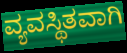
ವ್ಯವಸ್ಥಿತವಾಗಿ